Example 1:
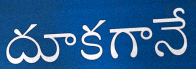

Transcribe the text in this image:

దూకగానే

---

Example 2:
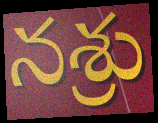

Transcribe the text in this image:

నశ్రు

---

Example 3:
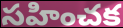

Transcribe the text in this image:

సహించక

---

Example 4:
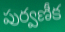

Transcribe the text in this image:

పుర్వణీక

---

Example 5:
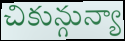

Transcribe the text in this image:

చికున్గున్యా